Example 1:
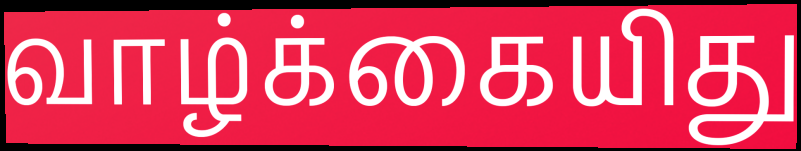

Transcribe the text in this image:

வாழ்க்கையிது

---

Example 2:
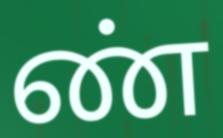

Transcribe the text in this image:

ண்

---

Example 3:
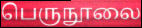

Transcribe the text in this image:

பெருநூலை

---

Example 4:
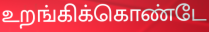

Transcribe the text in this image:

உறங்கிக்கொண்டே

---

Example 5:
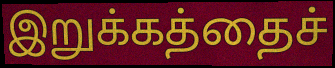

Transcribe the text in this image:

இறுக்கத்தைச்